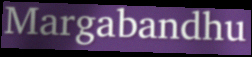
Margabandhu